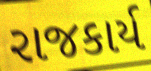
રાજકાર્ય